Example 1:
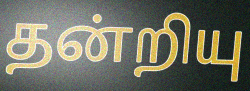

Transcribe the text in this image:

தன்றியு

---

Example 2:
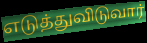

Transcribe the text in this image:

எடுத்துவிடுவார்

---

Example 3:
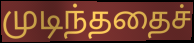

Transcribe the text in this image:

முடிந்ததைச்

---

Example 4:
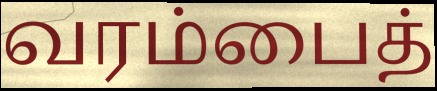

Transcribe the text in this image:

வரம்பைத்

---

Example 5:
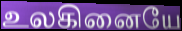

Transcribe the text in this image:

உலகினையே